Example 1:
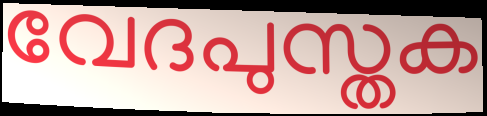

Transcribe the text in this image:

വേദപുസ്തക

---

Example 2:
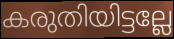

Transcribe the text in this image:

കരുതിയിട്ടല്ലേ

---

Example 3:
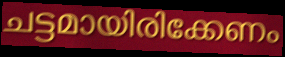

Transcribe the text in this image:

ചട്ടമായിരിക്കേണം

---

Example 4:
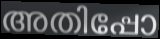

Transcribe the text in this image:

അതിപ്പോ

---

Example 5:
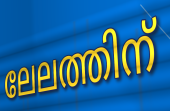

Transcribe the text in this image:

ലേലത്തിന്